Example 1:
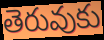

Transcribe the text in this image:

తెరువుకు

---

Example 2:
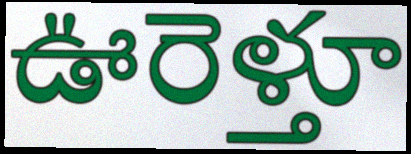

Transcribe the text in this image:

ఊరెళ్తూ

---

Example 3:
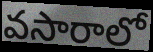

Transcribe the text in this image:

వసారాలో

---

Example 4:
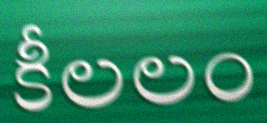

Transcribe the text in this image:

కీలలం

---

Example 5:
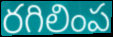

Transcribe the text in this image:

రగిలింప